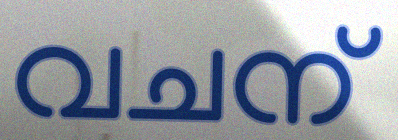
വചന്